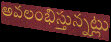
అవలంభిస్తున్నట్లు